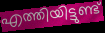
എത്തിയിട്ടുണ്ട്